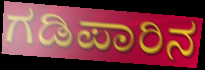
ಗಡಿಪಾರಿನ